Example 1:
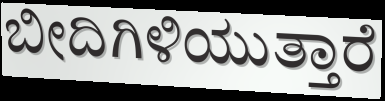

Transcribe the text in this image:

ಬೀದಿಗಿಳಿಯುತ್ತಾರೆ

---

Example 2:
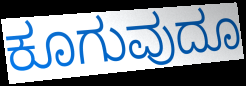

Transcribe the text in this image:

ಕೂಗುವುದೂ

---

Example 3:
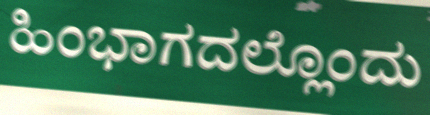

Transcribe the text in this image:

ಹಿಂಭಾಗದಲ್ಲೊಂದು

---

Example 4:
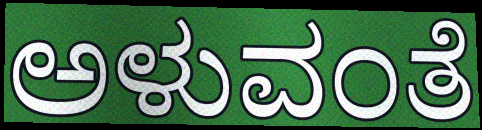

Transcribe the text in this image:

ಅಳುವಂತೆ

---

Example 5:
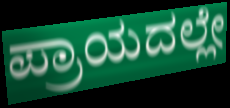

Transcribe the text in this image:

ಪ್ರಾಯದಲ್ಲೇ